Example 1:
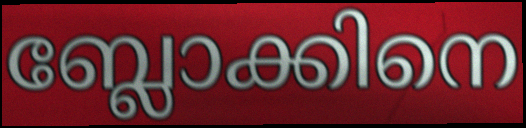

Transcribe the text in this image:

ബ്ലോക്കിനെ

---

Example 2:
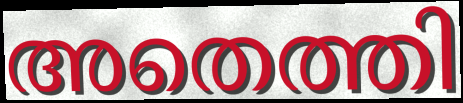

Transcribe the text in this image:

അതെത്തി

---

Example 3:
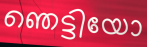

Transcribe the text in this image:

ഞെട്ടിയോ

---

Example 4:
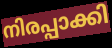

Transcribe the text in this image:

നിരപ്പാക്കി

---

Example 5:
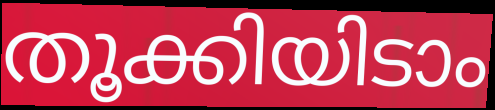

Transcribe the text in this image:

തൂക്കിയിടാം